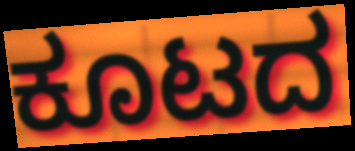
ಕೂಟದ